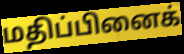
மதிப்பினைக்